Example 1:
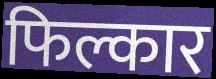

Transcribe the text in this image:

फिल्कार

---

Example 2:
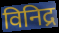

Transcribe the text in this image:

विनिद्र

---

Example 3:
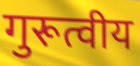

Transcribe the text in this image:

गुरूत्वीय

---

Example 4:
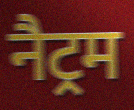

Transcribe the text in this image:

नैट्रम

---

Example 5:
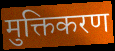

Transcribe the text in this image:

मुक्तिकरण